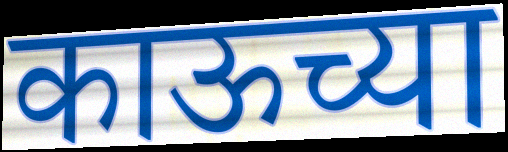
काऊच्या